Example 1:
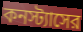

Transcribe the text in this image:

কনস্ট্যাসের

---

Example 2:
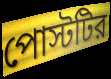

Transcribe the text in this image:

পোস্টটির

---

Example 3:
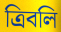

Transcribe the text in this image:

ত্রিবলি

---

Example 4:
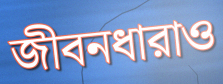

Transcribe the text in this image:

জীবনধারাও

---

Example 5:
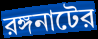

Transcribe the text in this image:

রঙ্গনাটের